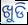
ଖୁଡି